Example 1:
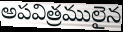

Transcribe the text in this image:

అపవిత్రములైన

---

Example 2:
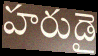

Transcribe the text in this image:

హరుడై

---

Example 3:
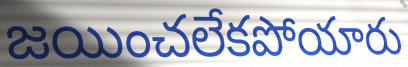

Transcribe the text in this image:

జయించలేకపోయారు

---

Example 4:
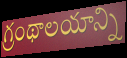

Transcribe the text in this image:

గ్రంథాలయాన్ని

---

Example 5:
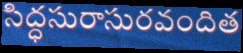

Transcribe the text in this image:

సిద్ధసురాసురవందిత